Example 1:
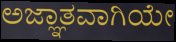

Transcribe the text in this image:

ಅಜ್ಞಾತವಾಗಿಯೇ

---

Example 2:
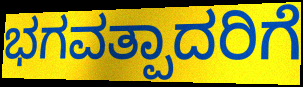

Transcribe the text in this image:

ಭಗವತ್ಪಾದರಿಗೆ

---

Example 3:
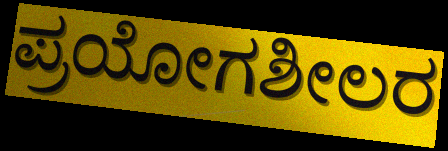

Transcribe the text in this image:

ಪ್ರಯೋಗಶೀಲರ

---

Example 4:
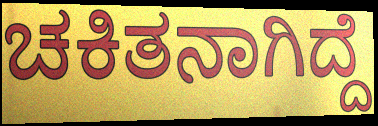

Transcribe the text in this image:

ಚಕಿತನಾಗಿದ್ದೆ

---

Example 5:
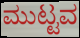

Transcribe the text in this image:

ಮುಟ್ಟವ